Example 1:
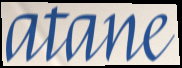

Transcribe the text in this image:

atane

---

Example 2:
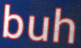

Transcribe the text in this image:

buh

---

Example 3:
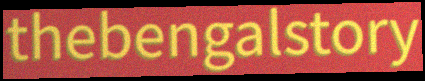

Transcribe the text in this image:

thebengalstory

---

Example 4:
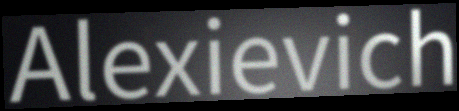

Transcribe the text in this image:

Alexievich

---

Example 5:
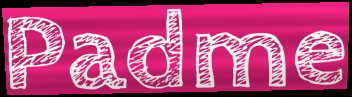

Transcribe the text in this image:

Padme